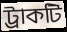
ট্রাকটি